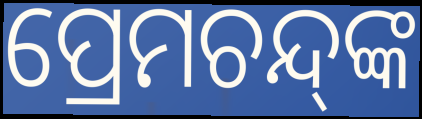
ପ୍ରେମଚନ୍ଦ୍‌ଙ୍କ